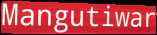
Mangutiwar